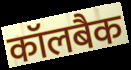
कॉलबैक